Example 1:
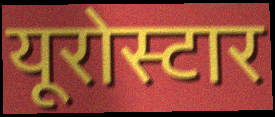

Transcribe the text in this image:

यूरोस्टार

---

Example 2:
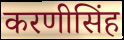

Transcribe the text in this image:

करणीसिंह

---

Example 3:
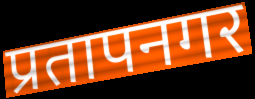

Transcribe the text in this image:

प्रतापनगर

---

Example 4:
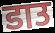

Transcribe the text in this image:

डाउ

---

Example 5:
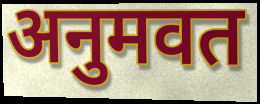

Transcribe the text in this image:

अनुमवत